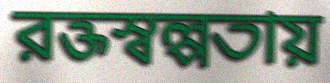
রক্তস্বল্পতায়